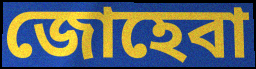
জোহেবা